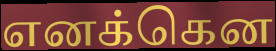
எனக்கென